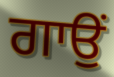
ਗਾਉਂ